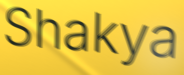
Shakya